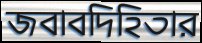
জবাবদিহিতার